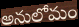
అనులోమం